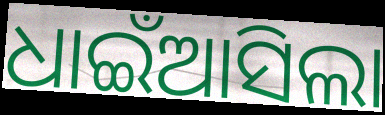
ଧାଇଁଆସିଲା